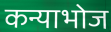
कन्याभोज